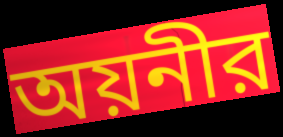
অয়নীর